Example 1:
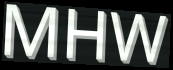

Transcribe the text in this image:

MHW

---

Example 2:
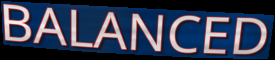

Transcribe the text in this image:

BALANCED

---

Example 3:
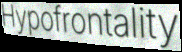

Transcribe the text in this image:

Hypofrontality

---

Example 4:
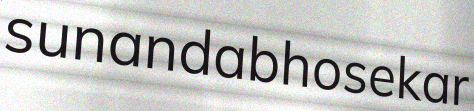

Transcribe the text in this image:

sunandabhosekar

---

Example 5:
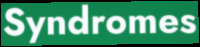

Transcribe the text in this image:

Syndromes